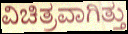
ವಿಚಿತ್ರವಾಗಿತ್ತು